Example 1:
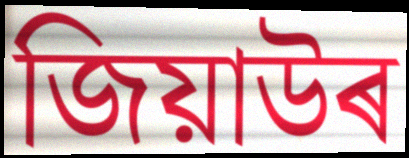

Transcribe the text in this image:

জিয়াউৰ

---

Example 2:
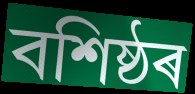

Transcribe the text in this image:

বশিষ্ঠৰ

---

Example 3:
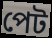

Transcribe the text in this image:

পেট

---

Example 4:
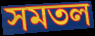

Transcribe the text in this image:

সমতল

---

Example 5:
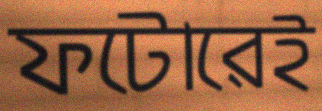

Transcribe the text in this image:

ফটোৱেই